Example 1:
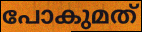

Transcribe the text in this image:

പോകുമത്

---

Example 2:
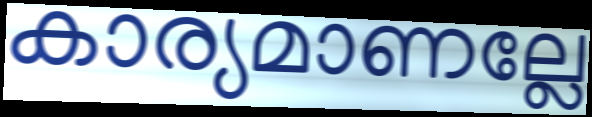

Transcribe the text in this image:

കാര്യമാണല്ലേ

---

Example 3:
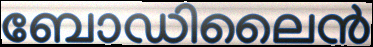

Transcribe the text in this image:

ബോഡിലൈൻ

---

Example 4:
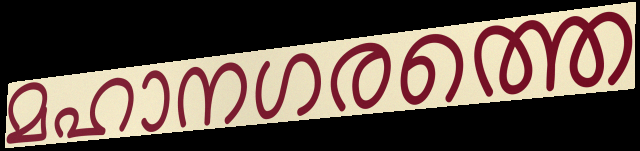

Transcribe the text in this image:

മഹാനഗരത്തെ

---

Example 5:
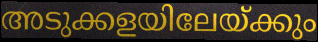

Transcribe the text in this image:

അടുക്കളയിലേയ്ക്കും